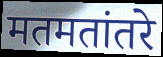
मतमतांतरे